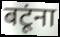
बटूंना